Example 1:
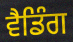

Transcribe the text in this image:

ਵੈਡਿੰਗ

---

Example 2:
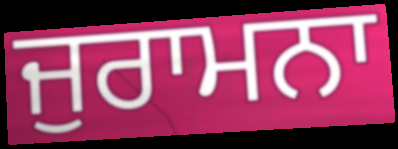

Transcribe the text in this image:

ਜੁਰਾਮਨਾ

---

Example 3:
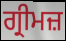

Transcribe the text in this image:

ਗ੍ਰੀਮਜ਼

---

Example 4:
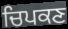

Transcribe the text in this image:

ਚਿਪਕਣ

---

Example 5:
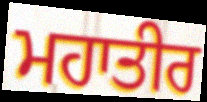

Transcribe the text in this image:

ਮਹਾਤੀਰ